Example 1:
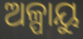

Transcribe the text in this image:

ଅଳ୍ପାୟୁ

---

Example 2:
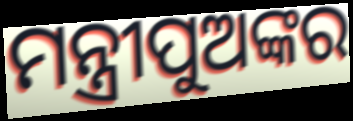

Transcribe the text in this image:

ମନ୍ତ୍ରୀପୁଅଙ୍କର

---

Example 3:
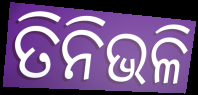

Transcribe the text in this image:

ତିନିଭଳି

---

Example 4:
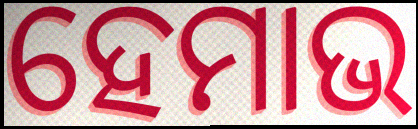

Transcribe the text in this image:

ହେମାଭ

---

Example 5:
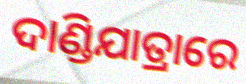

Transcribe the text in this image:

ଦାଣ୍ଡିଯାତ୍ରାରେ